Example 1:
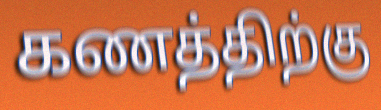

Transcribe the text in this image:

கணத்திற்கு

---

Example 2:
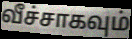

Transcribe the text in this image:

வீச்சாகவும்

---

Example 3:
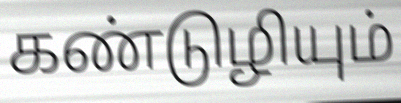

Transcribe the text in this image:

கண்டுழியும்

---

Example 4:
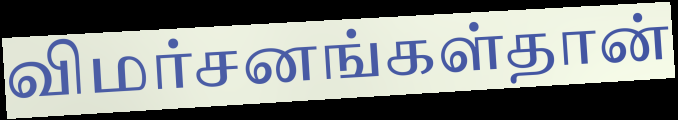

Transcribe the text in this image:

விமர்சனங்கள்தான்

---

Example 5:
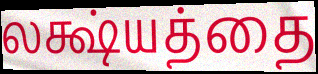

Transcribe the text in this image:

லக்ஷ்யத்தை